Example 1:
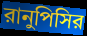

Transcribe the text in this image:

রানুপিসির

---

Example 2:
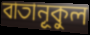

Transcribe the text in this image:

বাতানূকুল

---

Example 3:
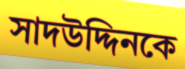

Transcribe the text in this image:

সাদউদ্দিনকে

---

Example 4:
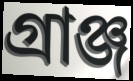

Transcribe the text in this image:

গ্রাঞ্জ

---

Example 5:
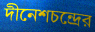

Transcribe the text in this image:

দীনেশচন্দ্রের